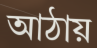
আঠায়